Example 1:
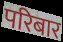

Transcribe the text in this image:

परिबार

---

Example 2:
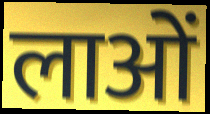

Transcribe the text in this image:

लाओं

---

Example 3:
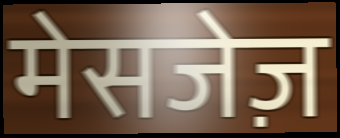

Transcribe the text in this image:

मेसजेज़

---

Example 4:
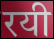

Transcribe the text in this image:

रयी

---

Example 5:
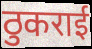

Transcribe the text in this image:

ठुकराई